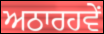
ਅਠਾਰਹਵੇਂ